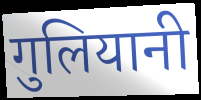
गुलियानी